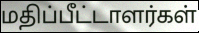
மதிப்பீட்டாளர்கள்